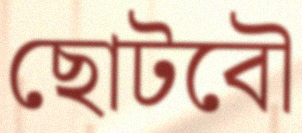
ছোটবৌ